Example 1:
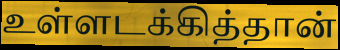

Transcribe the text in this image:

உள்ளடக்கித்தான்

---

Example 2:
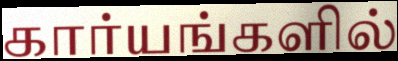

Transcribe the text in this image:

கார்யங்களில்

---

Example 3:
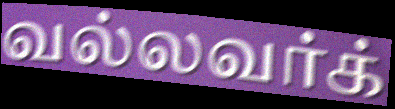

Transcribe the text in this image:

வல்லவர்க்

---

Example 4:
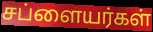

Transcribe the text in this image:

சப்ளையர்கள்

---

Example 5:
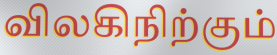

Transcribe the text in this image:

விலகிநிற்கும்